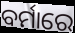
ବର୍ମାରେ